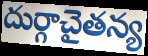
దుర్గాచైతన్య